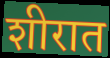
शीरात